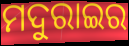
ମଦୁରାଇର